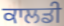
ਕਾਲਡੀ